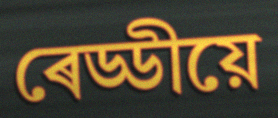
ৰেড্ডীয়ে